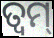
ତ୍ଵମ୍